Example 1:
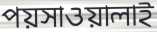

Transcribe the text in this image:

পয়সাওয়ালাই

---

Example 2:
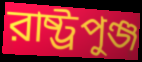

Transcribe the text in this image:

রাষ্ট্রপুঞ্জ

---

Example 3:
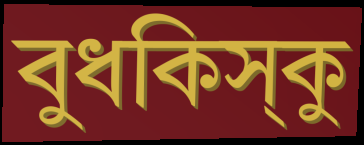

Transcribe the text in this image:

বুধকিস্‌কু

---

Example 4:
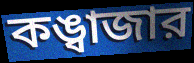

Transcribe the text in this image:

কঙ্বাজার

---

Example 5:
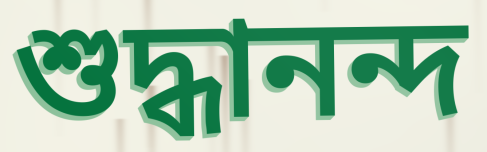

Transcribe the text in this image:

শুদ্ধানন্দ